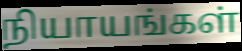
நியாயங்கள்